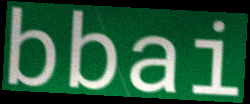
bbai